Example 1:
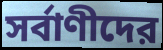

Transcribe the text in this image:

সর্বাণীদের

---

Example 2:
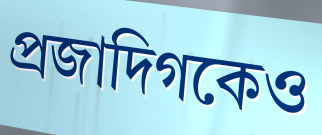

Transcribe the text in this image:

প্রজাদিগকেও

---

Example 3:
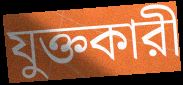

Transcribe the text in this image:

যুক্তকারী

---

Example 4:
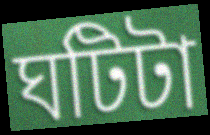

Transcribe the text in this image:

ঘটিটা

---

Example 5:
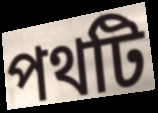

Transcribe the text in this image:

পথটি